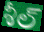
శీల్